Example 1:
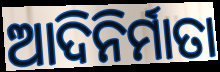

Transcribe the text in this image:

ଆଦିନିର୍ମାତା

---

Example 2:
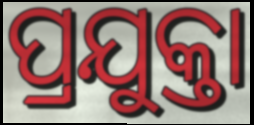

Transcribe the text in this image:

ପ୍ରଯୁକ୍ତା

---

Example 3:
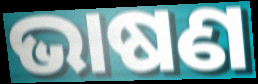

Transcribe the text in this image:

ଭାଷଣ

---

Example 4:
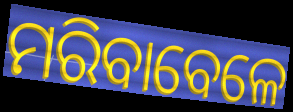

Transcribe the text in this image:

ମରିବାବେଳେ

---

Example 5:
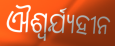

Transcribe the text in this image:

ଐଶ୍ଵର୍ଯ୍ୟହୀନ